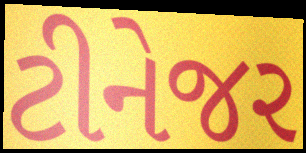
ટીનેજર